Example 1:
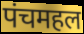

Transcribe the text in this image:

पंचमहल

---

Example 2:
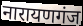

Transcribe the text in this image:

नारायणगंज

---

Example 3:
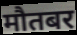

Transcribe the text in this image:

मौतबर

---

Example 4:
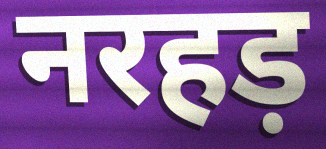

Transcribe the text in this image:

नरहड़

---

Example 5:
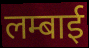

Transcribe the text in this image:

लम्बाई